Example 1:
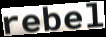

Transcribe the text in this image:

rebel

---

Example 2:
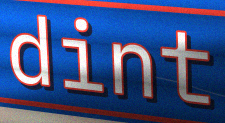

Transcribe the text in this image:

dint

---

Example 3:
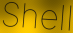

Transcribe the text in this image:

Shell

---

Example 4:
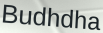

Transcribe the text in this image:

Budhdha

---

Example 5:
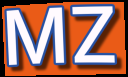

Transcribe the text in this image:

MZ